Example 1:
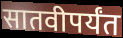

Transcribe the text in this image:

सातवीपर्यंत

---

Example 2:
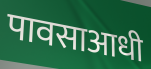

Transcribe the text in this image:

पावसाआधी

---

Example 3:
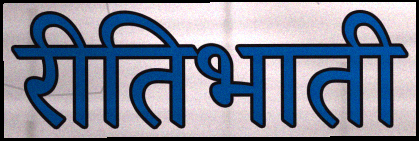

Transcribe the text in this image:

रीतिभाती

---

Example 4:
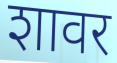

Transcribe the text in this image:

शावर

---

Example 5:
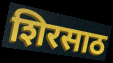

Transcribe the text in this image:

शिरसाठ